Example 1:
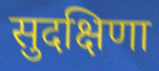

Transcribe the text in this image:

सुदक्षिणा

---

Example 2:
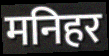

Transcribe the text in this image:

मनिहर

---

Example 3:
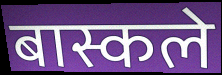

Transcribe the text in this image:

बास्कले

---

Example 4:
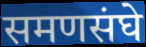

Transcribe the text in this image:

समणसंघे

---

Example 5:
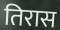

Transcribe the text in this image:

तिरास